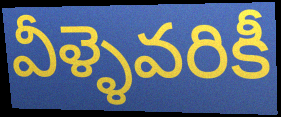
వీళ్ళెవరికీ